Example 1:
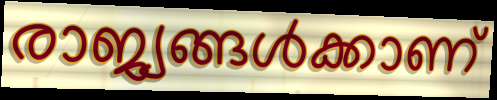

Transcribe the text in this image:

രാജ്യങ്ങൾക്കാണ്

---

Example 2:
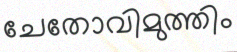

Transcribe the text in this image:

ചേതോവിമുത്തിം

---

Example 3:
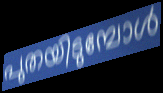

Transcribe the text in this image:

പുതയിടുമ്പോൾ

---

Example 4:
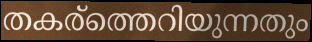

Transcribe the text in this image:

തകര്ത്തെറിയുന്നതും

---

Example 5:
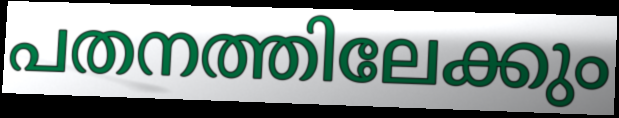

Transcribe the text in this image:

പതനത്തിലേക്കും